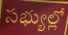
సభ్యుల్లో